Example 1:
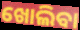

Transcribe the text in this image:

ଖୋଲିବା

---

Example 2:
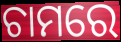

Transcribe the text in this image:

ଚାମରେ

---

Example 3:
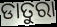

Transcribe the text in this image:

ଡାତୁରା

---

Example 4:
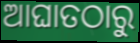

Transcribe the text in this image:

ଆଘାତଠାରୁ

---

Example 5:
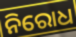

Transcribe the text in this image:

ନିରୋଧ